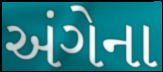
અંગેના